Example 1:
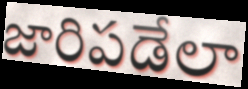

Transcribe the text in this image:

జారిపడేలా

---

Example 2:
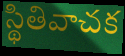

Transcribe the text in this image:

స్థితివాచక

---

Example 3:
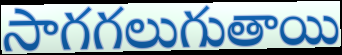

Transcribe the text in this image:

సాగగలుగుతాయి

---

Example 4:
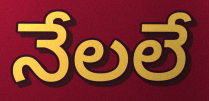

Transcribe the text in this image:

నేలలే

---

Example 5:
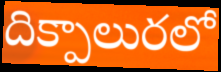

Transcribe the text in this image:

దిక్పాలురలో